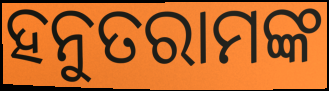
ହନୁତରାମଙ୍କ